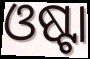
ଓଷ୍ଟା